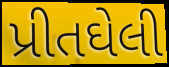
પ્રીતઘેલી